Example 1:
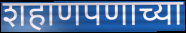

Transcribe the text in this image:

शहाणपणाच्या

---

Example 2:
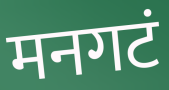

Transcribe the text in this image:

मनगटं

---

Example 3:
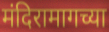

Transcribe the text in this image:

मंदिरामागच्या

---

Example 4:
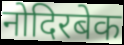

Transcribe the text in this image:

नोदिरबेक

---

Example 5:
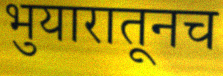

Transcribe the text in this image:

भुयारातूनच